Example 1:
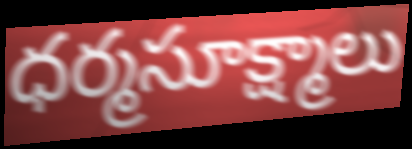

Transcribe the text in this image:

ధర్మసూక్ష్మాలు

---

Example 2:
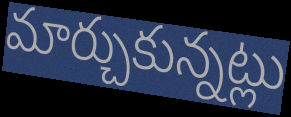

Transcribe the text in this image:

మార్చుకున్నట్లు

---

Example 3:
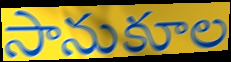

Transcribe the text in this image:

సానుకూల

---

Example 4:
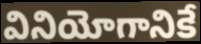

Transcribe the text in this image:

వినియోగానికే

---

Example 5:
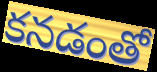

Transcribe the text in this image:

కనడంతో